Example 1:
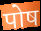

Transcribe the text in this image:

पोष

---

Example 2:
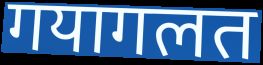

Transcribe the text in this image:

गयागलत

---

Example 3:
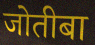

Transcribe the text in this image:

जोतीबा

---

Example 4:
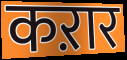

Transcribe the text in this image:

कऱार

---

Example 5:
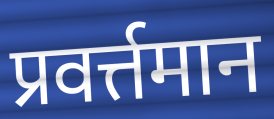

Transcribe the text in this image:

प्रवर्त्तमान